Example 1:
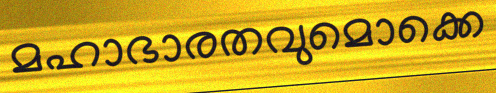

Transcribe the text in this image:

മഹാഭാരതവുമൊക്കെ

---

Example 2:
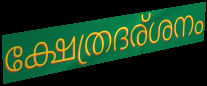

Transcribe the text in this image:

ക്ഷേത്രദര്ശനം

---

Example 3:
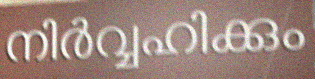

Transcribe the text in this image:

നിർവ്വഹിക്കും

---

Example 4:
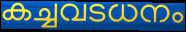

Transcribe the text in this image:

കച്ചവടധനം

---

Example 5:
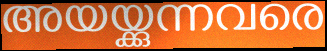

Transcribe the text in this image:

അയയ്ക്കുന്നവരെ